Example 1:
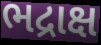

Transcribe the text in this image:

ભદ્રાક્ષ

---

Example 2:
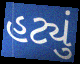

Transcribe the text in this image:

હટ્યું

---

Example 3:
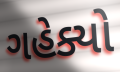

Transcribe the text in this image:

ગહેક્યો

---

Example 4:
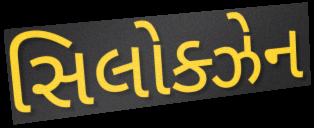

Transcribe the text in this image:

સિલોક્ઝેન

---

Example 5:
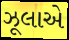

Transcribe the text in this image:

ઝૂલાએ